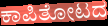
ಕಾಪಿತೋಟದ